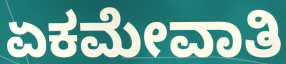
ಏಕಮೇವಾತಿ